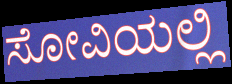
ಸೋವಿಯಲ್ಲಿ